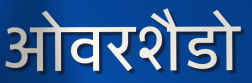
ओवरशैडो